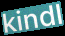
kindl